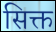
सिक्त